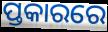
ପ୍ତକାରରେ